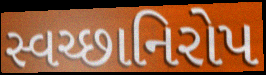
સ્વચ્છાનિરોપ